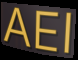
AEI